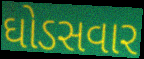
ઘોડસવાર